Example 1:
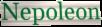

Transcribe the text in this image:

Nepoleon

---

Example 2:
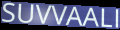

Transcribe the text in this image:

SUVVAALI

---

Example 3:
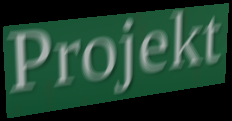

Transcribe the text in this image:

Projekt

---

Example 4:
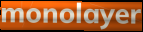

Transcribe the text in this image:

monolayer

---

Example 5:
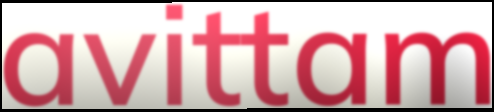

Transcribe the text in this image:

avittam